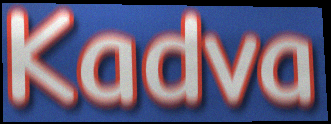
Kadva